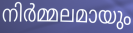
നിർമ്മലമായും